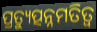
ପ୍ରତ୍ୟୁତ୍ପନ୍ନମତିତ୍ୱ